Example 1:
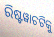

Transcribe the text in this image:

ରିଷ୍ଟୱାଚଟିକୁ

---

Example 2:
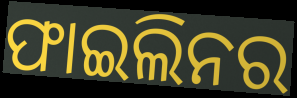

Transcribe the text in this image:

ଫାଇଲିନର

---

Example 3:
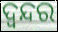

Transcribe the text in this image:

ଦ୍ବନ୍ଦର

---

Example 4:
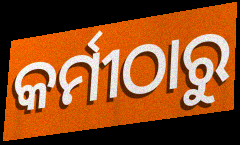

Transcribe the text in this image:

କର୍ମୀଠାରୁ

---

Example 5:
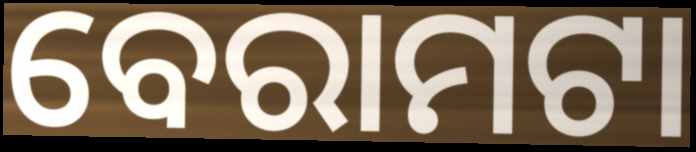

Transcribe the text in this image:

ବେରାମଟା